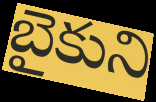
బైకుని